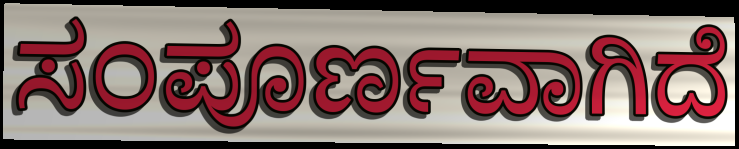
ಸಂಪೂರ್ಣವಾಗಿದೆ